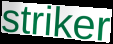
striker